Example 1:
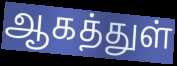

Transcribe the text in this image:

ஆகத்துள்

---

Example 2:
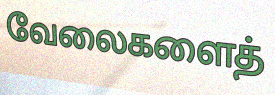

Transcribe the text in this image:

வேலைகளைத்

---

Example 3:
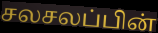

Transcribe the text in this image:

சலசலப்பின்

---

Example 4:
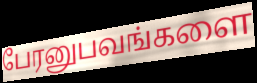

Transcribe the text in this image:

பேரனுபவங்களை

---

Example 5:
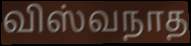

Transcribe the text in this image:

விஸ்வநாத